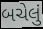
બચેલું